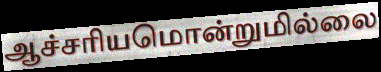
ஆச்சரியமொன்றுமில்லை